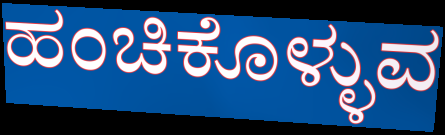
ಹಂಚಿಕೊಳ್ಳುವ